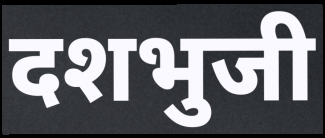
दशभुजी